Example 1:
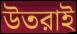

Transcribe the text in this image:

উতরাই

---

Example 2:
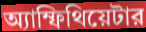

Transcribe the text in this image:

অ্যাম্ফিথিয়েটার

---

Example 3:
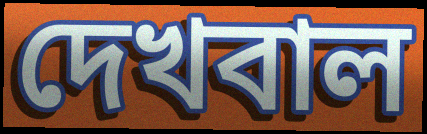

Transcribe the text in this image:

দেখবাল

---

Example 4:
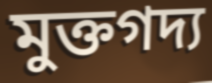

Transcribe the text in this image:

মুক্তগদ্য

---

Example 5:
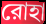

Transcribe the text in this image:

রোহা